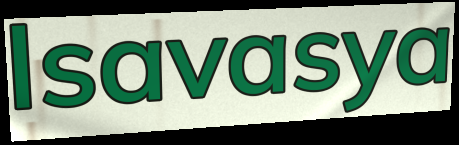
Isavasya